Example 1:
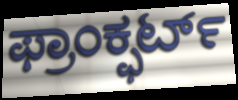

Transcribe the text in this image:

ಫ್ರಾಂಕ್ಫರ್ಟ್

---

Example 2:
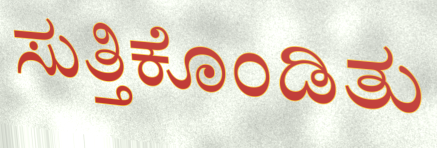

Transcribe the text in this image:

ಸುತ್ತಿಕೊಂಡಿತು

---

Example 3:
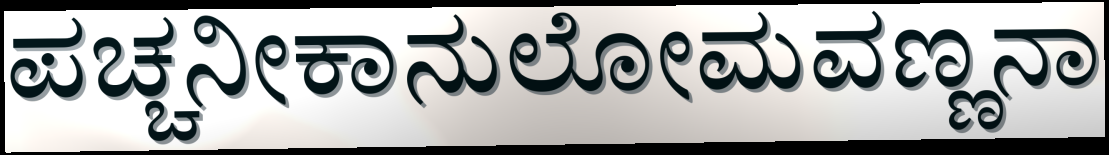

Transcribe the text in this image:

ಪಚ್ಚನೀಕಾನುಲೋಮವಣ್ಣನಾ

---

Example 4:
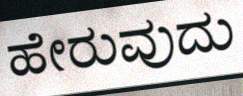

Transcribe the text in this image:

ಹೇರುವುದು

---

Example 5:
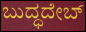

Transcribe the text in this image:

ಬುದ್ಧದೇಬ್